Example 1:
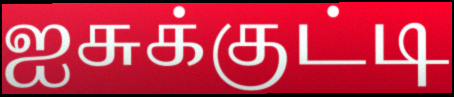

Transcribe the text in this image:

ஐசுக்குட்டி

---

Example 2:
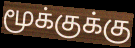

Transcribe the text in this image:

மூக்குக்கு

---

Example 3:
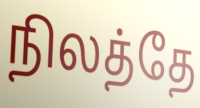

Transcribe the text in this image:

நிலத்தே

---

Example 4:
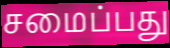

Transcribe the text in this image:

சமைப்பது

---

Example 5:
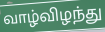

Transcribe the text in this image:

வாழ்விழந்து